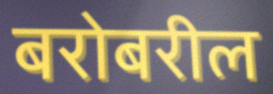
बरोबरील